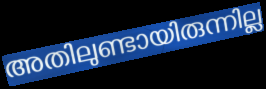
അതിലുണ്ടായിരുന്നില്ല